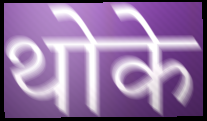
थोके